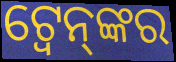
ଟ୍ୱେନ୍‌ଙ୍କର